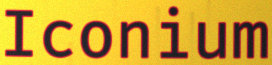
Iconium